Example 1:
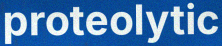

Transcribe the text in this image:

proteolytic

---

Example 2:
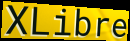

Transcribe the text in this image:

XLibre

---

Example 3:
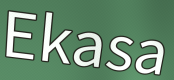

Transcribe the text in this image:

Ekasa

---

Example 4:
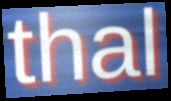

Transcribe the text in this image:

thal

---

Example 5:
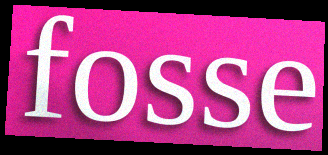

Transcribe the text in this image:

fosse